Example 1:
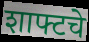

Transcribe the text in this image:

शाफ्टचे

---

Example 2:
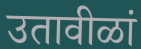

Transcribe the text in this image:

उतावीळां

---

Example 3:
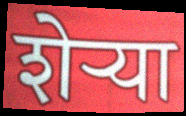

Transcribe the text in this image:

शेऱ्या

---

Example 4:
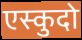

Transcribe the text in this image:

एस्कुदो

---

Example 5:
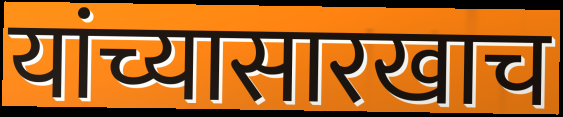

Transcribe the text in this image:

यांच्यासारखाच